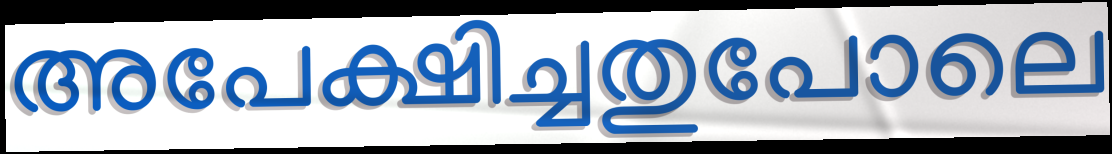
അപേക്ഷിച്ചതുപോലെ